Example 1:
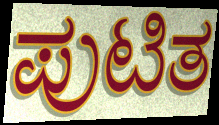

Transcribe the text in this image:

ಪುಟಿತ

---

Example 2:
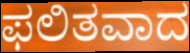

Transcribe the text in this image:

ಫಲಿತವಾದ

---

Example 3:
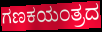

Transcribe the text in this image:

ಗಣಕಯಂತ್ರದ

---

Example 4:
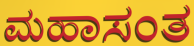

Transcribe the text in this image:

ಮಹಾಸಂತ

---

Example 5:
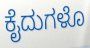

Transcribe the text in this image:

ಕೈದುಗಳೊ